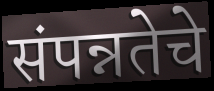
संपन्नतेचे